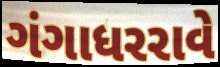
ગંગાધરરાવે